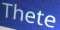
Thete